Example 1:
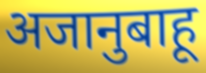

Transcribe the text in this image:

अजानुबाहू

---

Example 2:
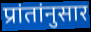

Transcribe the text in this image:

प्रांतांनुसार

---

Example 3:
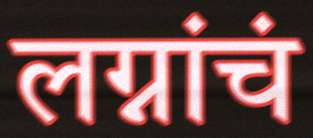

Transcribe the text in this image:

लग्नांचं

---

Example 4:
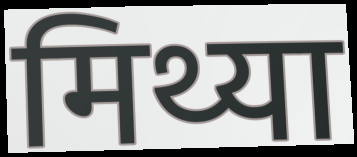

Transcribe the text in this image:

मिथ्या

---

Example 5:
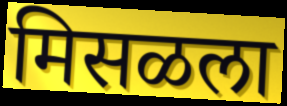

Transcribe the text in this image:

मिसळला